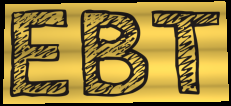
EBT